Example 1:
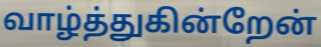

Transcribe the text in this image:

வாழ்த்துகின்றேன்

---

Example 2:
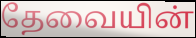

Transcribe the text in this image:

தேவையின்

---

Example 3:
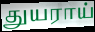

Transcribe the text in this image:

துயராய்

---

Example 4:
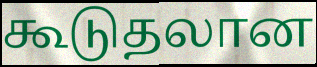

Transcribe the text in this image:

கூடுதலான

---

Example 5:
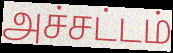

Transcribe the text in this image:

அச்சட்டம்